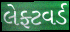
લેફ્ટવર્ડ